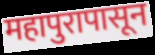
महापुरापासून